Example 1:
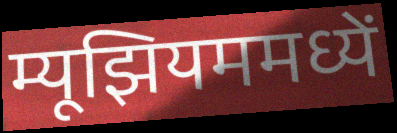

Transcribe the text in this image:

म्यूझियममध्यें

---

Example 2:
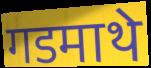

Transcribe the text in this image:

गडमाथे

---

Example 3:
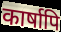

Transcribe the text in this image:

कार्षापि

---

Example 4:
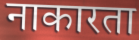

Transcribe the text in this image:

नाकारता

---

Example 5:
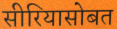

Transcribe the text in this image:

सीरियासोबत